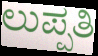
ಲುಪ್ಪತಿ